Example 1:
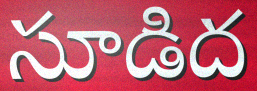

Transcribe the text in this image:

సూడిద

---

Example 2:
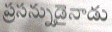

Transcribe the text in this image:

ప్రసన్నుడైనాడు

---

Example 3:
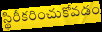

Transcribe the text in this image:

స్థిరీకరించుకోవడం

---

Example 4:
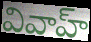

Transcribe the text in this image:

వివాహ్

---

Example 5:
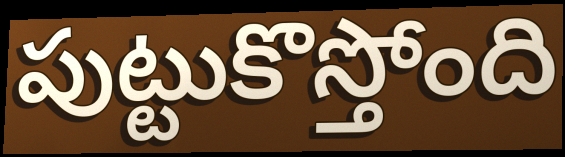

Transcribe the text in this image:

పుట్టుకొస్తోంది